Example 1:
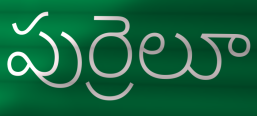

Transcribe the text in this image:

పుర్రెలూ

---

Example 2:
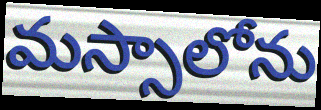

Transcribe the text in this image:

మస్సాలోను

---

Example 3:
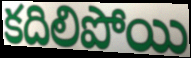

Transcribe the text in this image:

కదిలిపోయి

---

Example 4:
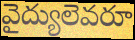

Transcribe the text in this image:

వైద్యులెవరూ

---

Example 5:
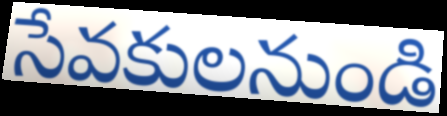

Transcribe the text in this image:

సేవకులనుండి